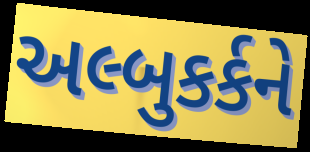
અલ્બુકર્કને